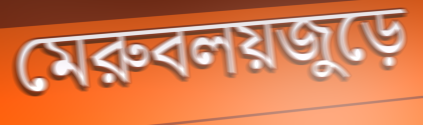
মেরুবলয়জুড়ে